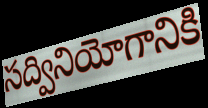
సద్వినియోగానికి